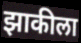
झाकीला